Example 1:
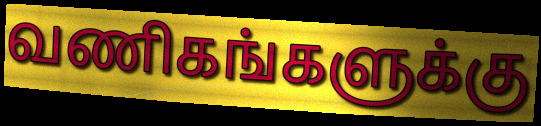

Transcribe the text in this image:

வணிகங்களுக்கு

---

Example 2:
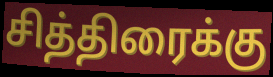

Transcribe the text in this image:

சித்திரைக்கு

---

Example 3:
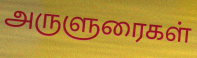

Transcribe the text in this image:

அருளுரைகள்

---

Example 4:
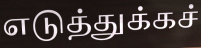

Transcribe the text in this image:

எடுத்துக்கச்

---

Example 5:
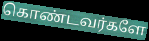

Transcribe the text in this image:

கொண்டவர்களே